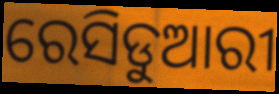
ରେସିଡୁଆରୀ